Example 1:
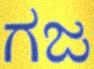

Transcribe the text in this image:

ಗಜ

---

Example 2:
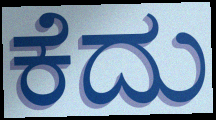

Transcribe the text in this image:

ಕೆದು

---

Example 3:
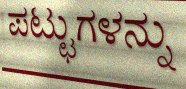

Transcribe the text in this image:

ಪಟ್ಟುಗಳನ್ನು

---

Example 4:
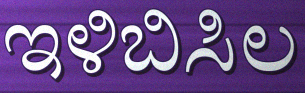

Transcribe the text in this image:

ಇಳಿಬಿಸಿಲ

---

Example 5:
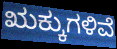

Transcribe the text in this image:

ಋಕ್ಕುಗಳಿವೆ